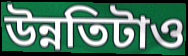
উন্নতিটাও